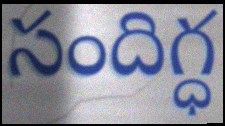
సందిగ్ధ